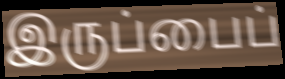
இருப்பைப்